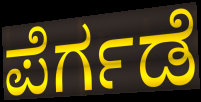
ಪೆರ್ಗಡೆ